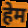
हेम